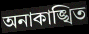
অনাকাঙ্খিত